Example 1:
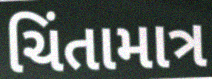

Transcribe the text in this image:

ચિંતામાત્ર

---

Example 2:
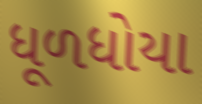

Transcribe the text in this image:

ધૂળધોયા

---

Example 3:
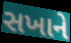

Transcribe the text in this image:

સખાને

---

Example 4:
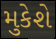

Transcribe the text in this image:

મુકેશે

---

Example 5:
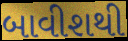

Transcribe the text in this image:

બાવીશથી